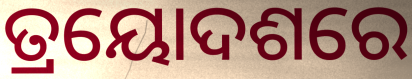
ତ୍ରୟୋଦଶରେ